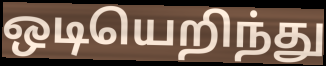
ஒடியெறிந்து